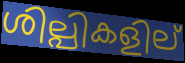
ശില്പികളില്